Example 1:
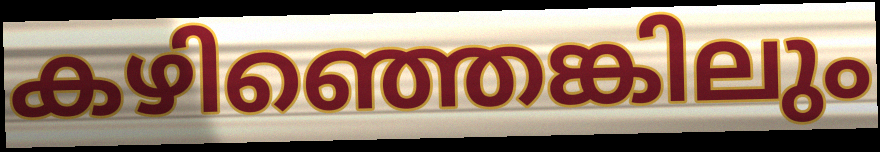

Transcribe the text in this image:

കഴിഞ്ഞെങ്കിലും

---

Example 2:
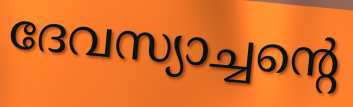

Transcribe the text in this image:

ദേവസ്യാച്ചന്റെ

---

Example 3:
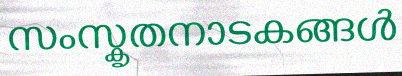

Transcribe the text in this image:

സംസ്കൃതനാടകങ്ങൾ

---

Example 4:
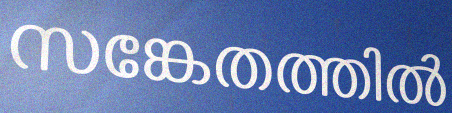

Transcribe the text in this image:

സങ്കേതത്തിൽ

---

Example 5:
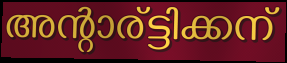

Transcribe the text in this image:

അന്റാര്ട്ടിക്കന്